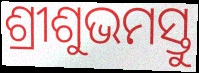
ଶ୍ରୀଶୁଭମସ୍ତୁ